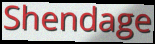
Shendage